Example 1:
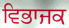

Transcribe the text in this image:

ਵਿਭਾਜਕ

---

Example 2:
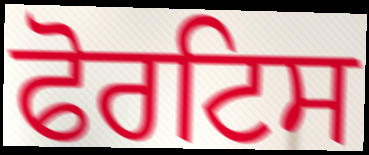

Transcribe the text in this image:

ਫੋਰਟਿਸ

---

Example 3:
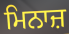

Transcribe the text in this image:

ਮਿਨਾਜ਼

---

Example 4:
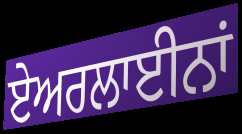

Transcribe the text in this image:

ਏਅਰਲਾਈਨਾਂ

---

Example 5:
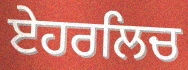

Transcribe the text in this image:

ਏਹਰਲਿਚ